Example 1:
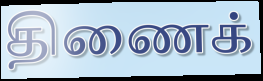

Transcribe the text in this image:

திணைக்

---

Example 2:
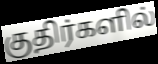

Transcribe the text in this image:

குதிர்களில்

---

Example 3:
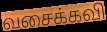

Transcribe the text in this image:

வசைக்கவி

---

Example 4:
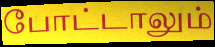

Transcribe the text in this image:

போட்டாலும்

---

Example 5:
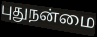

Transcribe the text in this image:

புதுநன்மை